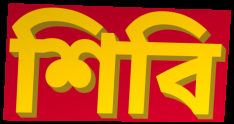
শিবি